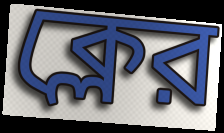
ক্লের